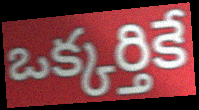
ఒక్కర్తికే